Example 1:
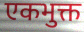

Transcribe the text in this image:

एकभुक्त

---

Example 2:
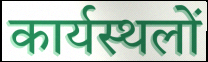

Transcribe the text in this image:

कार्यस्थलों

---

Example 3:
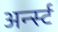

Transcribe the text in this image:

अर्न्स्ट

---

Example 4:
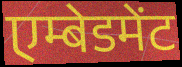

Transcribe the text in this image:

एम्बेडमेंट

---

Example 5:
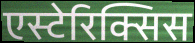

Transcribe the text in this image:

एस्टेरिक्सिस